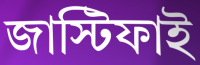
জাস্টিফাই